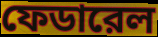
ফেডারেল